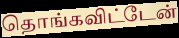
தொங்கவிட்டேன்